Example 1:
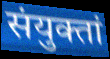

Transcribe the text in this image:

संयुक्तां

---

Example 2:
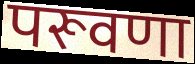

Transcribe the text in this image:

परूवणा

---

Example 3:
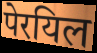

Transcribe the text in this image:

पेरयिल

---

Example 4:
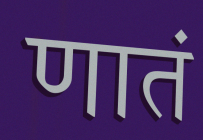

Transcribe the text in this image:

णातं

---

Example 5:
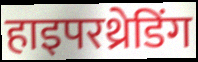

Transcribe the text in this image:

हाइपरथ्रेडिंग